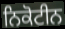
ਨਿਕੋਟੀਨ